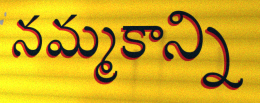
నమ్మకాన్ని